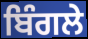
ਬਿੰਗਲੇ